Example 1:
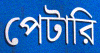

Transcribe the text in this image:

পেটারি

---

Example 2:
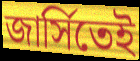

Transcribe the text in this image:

জার্সিতেই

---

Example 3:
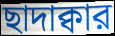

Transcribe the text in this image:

ছাদাক্বার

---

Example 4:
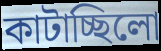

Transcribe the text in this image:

কাটাচ্ছিলো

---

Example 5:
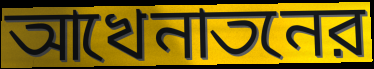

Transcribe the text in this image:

আখেনাতনের